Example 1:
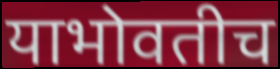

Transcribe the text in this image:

याभोवतीच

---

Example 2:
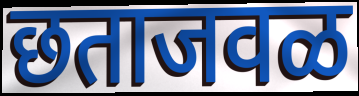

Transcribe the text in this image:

छताजवळ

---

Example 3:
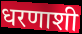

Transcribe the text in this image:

धरणाशी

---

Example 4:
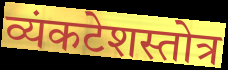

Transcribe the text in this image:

व्यंकटेशस्तोत्र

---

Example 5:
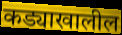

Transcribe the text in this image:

कड्याखालील